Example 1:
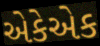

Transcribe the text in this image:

એકેએક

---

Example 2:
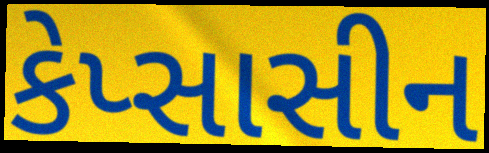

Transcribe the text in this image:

કેપ્સાસીન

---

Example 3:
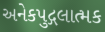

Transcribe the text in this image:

અનેકપુદ્ગલાત્મક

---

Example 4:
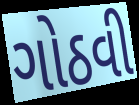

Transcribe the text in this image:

ગોઠવી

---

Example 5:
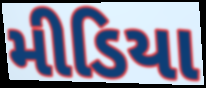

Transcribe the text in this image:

મીડિયા